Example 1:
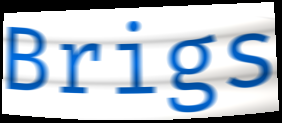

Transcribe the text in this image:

Brigs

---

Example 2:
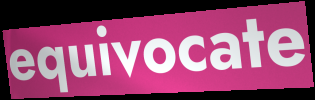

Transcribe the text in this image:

equivocate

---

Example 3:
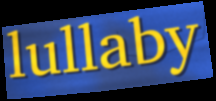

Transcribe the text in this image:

lullaby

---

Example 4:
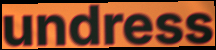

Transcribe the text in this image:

undress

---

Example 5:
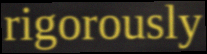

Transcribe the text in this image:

rigorously